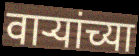
वाऱ्यांच्या